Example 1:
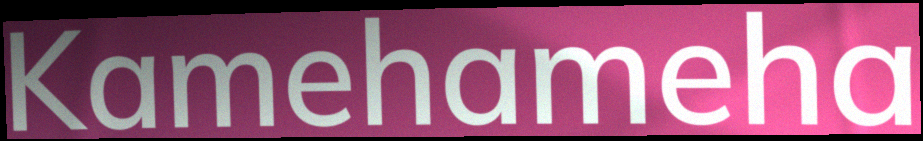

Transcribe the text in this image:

Kamehameha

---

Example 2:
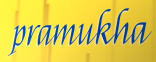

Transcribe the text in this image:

pramukha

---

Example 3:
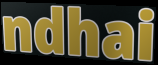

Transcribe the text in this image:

ndhai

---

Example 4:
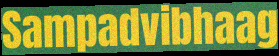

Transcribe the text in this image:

Sampadvibhaag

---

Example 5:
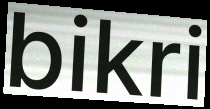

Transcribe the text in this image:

bikri